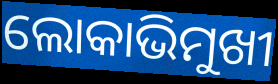
ଲୋକାଭିମୁଖୀ